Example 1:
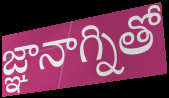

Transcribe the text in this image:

జ్ఞానాగ్నితో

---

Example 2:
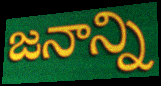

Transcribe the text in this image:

జనాన్ని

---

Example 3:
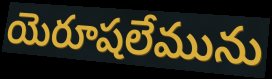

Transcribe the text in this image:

యెరూషలేమును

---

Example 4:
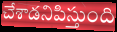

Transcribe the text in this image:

చేశాడనిపిస్తుంది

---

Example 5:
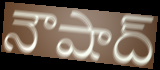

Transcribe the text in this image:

నౌషాద్